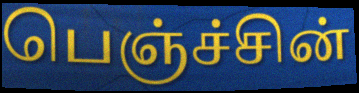
பெஞ்ச்சின்